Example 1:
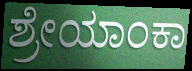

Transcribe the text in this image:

ಶ್ರೇಯಾಂಕಾ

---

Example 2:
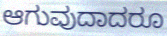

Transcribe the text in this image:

ಆಗುವುದಾದರೂ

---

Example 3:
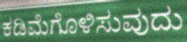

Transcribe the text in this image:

ಕಡಿಮೆಗೊಳಿಸುವುದು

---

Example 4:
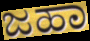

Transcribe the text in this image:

ಜಹಾ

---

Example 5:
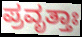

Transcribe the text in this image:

ಪ್ರವೃತ್ತಾಃ